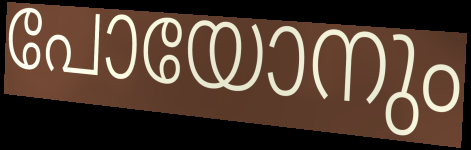
പോയോനും